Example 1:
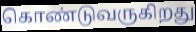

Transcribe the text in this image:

கொண்டுவருகிறது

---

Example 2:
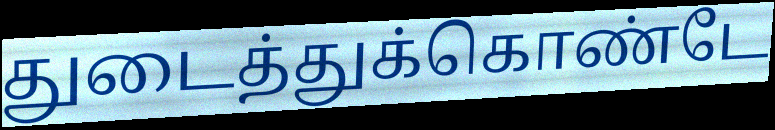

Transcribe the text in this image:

துடைத்துக்கொண்டே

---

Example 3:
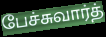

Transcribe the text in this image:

பேச்சுவார்த்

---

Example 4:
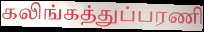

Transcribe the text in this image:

கலிங்கத்துப்பரணி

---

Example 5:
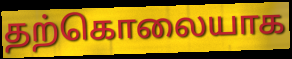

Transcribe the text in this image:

தற்கொலையாக